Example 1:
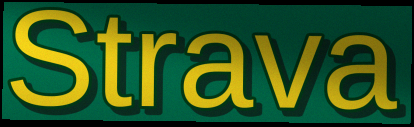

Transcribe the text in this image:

Strava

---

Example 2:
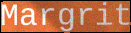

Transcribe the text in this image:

Margrit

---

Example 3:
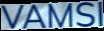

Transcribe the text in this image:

VAMSI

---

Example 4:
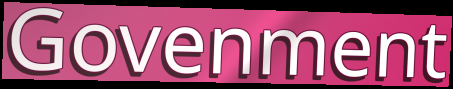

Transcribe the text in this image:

Govenment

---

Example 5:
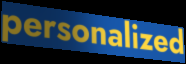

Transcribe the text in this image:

personalized